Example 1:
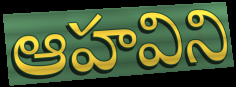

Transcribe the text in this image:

ఆహవిని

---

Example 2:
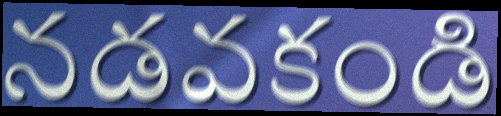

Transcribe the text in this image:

నడవకండి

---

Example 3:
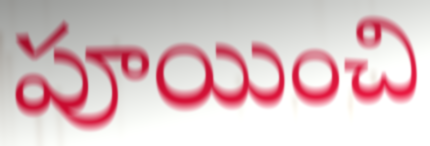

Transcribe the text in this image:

పూయించి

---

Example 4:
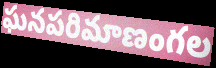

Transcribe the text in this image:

ఘనపరిమాణంగల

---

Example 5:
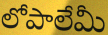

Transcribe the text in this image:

లోపాలేమీ